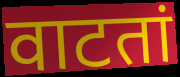
वाटतां